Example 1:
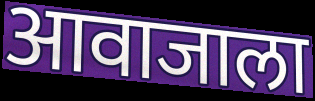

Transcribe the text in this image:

आवाजाला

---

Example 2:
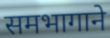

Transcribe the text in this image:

समभागाने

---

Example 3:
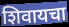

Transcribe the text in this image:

शिवायचा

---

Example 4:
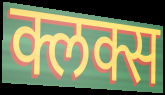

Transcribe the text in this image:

क्लक्स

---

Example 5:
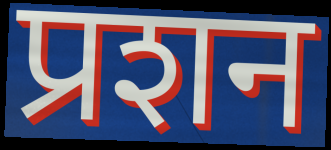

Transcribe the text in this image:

प्रशन